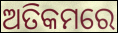
ଅତିକମରେ